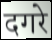
दगरे